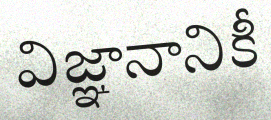
విజ్ఞానానికీ